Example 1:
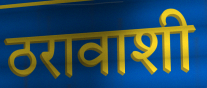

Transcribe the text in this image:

ठरावाशी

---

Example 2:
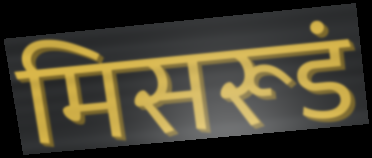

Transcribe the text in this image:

मिसरूडं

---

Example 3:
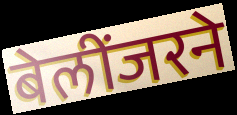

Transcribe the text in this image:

बेलींजरने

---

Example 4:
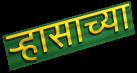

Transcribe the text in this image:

ऱ्हासाच्या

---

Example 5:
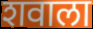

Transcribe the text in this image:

शवाला